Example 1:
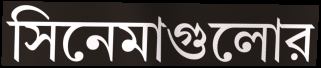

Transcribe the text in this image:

সিনেমাগুলোর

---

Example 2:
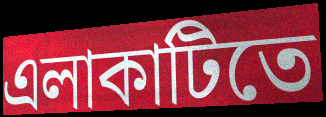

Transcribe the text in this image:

এলাকাটিতে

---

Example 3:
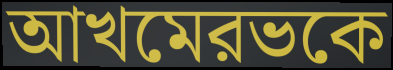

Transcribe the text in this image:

আখমেরভকে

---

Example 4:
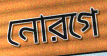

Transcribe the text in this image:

নোরগে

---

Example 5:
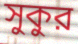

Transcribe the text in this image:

সুকুর